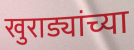
खुराड्यांच्या